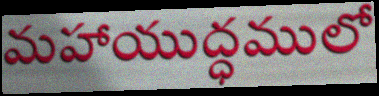
మహాయుద్ధములో